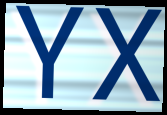
YX